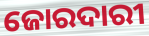
ଜୋରଦାରୀ